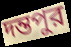
দন্তপুর